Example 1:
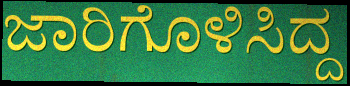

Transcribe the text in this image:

ಜಾರಿಗೊಳಿಸಿದ್ದ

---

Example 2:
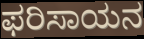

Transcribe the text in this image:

ಫರಿಸಾಯನ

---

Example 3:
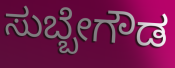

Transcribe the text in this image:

ಸುಬ್ಬೇಗೌಡ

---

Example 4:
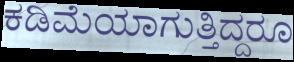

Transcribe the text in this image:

ಕಡಿಮೆಯಾಗುತ್ತಿದ್ದರೂ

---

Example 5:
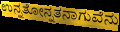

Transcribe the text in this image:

ಉನ್ನತೋನ್ನತನಾಗುವೆನು